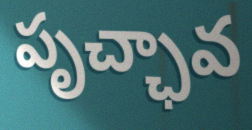
పృచ్ఛావ